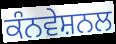
ਕੰਨਵੇਸ਼ਨਲ